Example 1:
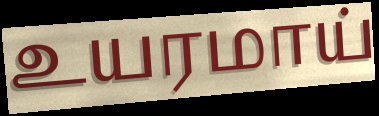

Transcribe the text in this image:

உயரமாய்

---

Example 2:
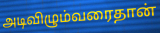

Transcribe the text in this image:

அடிவிழும்வரைதான்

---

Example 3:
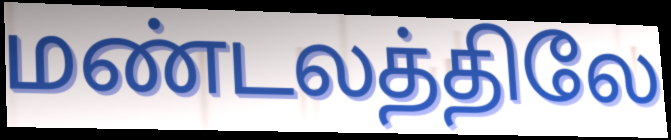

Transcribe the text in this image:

மண்டலத்திலே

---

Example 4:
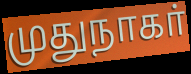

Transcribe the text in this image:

முதுநாகர்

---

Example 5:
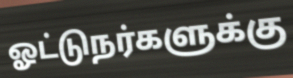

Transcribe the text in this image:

ஓட்டுநர்களுக்கு